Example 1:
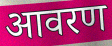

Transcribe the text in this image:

आवरण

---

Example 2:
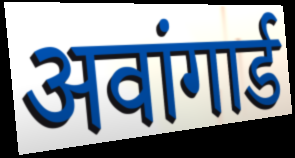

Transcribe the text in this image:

अवांगार्ड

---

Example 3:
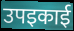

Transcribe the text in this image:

उपइकाई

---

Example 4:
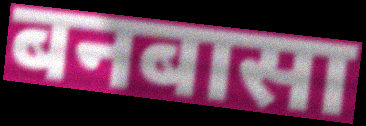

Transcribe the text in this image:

बनबासा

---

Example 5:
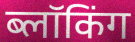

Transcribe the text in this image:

ब्लॉकिंग